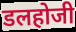
डलहोजी